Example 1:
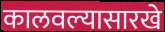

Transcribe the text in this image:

कालवल्यासारखे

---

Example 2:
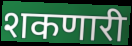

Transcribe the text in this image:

शकणारी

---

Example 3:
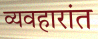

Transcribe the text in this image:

व्यवहारांत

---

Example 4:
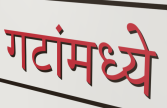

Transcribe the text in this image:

गटांमध्ये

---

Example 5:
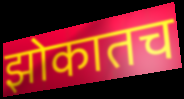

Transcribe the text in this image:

झोकातच